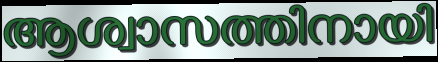
ആശ്വാസത്തിനായി